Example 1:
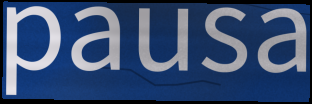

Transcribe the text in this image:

pausa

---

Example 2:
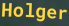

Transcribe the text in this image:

Holger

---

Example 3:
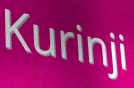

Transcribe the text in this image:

Kurinji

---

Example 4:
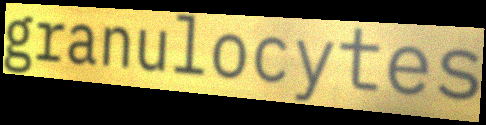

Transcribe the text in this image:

granulocytes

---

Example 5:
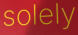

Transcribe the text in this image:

solely